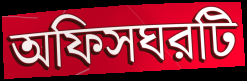
অফিসঘরটি